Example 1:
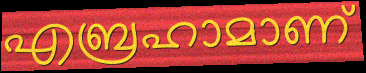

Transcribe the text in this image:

എബ്രഹാമാണ്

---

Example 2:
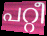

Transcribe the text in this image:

പറ്റീ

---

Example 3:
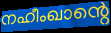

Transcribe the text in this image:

നഹീംഖാന്റെ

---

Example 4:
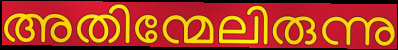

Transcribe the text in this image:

അതിന്മേലിരുന്നു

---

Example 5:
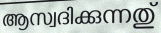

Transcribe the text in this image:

ആസ്വദിക്കുന്നതു്